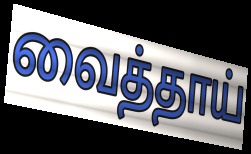
வைத்தாய்